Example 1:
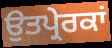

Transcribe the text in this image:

ਉਤਪ੍ਰੇਰਕਾਂ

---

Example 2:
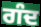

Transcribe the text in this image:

ਗੰਦ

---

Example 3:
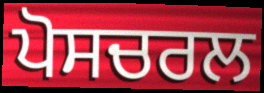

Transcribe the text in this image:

ਪੋਸਚਰਲ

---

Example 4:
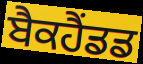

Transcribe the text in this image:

ਬੈਕਹੈਂਡਡ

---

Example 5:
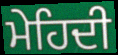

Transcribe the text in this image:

ਮੇਹਿਦੀ